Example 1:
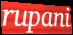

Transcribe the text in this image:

rupani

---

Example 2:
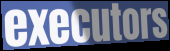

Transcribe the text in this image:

executors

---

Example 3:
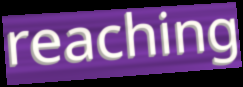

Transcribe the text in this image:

reaching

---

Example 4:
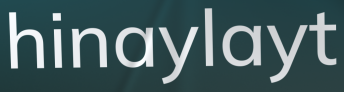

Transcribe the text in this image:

hinaylayt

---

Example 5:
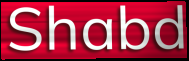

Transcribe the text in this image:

Shabd